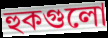
হুকগুলো